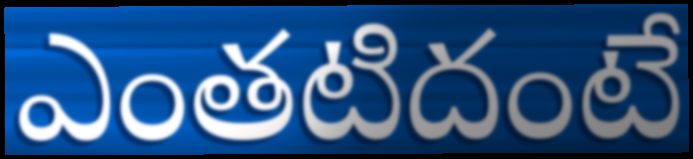
ఎంతటిదంటే